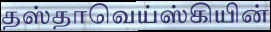
தஸ்தாவெய்ஸ்கியின்